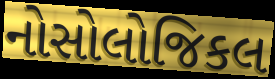
નોસોલોજિકલ